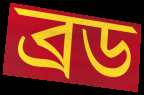
ব্ৰড